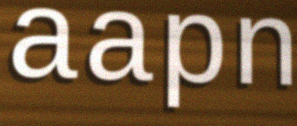
aapn